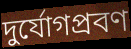
দুর্যোগপ্রবণ